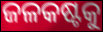
ଜଳକଷ୍ଟକୁ